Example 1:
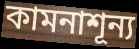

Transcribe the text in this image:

কামনাশূন্য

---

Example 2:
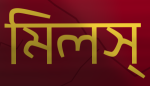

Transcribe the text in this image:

মিলস্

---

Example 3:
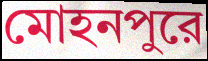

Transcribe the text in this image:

মোহনপুরে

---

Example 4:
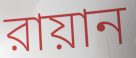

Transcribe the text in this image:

রায়ান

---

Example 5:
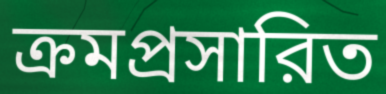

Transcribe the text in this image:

ক্রমপ্রসারিত